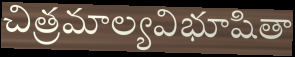
చిత్రమాల్యవిభూషితా